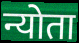
न्योता